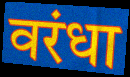
वरंधा